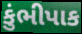
કુંભીપાક